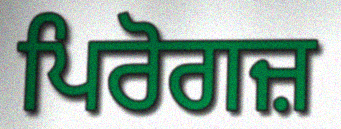
ਪਿਰੋਗਜ਼